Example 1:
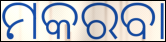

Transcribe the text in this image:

ମକରବା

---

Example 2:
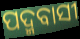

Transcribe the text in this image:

ପଦ୍ମବାସୀ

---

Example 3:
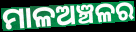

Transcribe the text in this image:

ମାଳଅଞ୍ଚଳର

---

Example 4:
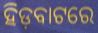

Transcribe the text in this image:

ହିଡ଼ବାଟରେ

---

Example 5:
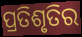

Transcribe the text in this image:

ପ୍ରତିଶୃତିର